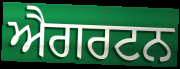
ਐਗਰਟਨ